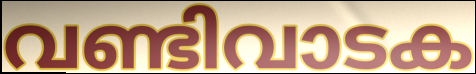
വണ്ടിവാടക